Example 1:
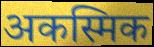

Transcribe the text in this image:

अकस्मिक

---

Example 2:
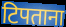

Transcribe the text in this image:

टिपताना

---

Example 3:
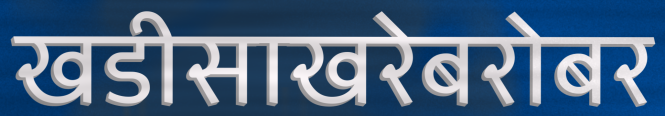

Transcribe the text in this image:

खडीसाखरेबरोबर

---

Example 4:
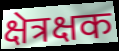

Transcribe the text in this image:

क्षेत्रक्षक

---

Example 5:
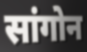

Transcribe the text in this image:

सांगोन